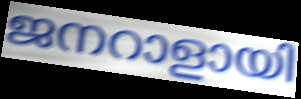
ജനറാളായി